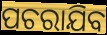
ପଚରାଯିବ